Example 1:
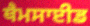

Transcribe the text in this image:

ਥੈਮਸਾਈਡ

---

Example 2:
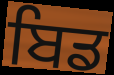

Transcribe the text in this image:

ਬਿਡ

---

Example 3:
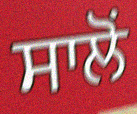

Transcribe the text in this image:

ਸਾਲੋਂ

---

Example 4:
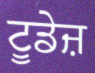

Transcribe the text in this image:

ਟੂਡੇਜ਼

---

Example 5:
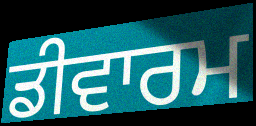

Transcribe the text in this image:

ਡੀਵਾਰਮ